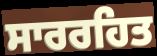
ਸਾਰਰਹਿਤ